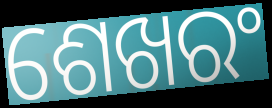
ଶେଖରଂ